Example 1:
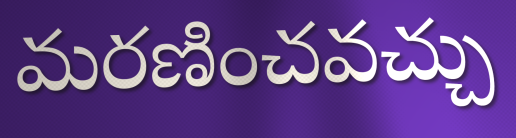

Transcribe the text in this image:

మరణించవచ్చు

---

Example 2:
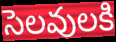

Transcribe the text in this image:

సెలవులకి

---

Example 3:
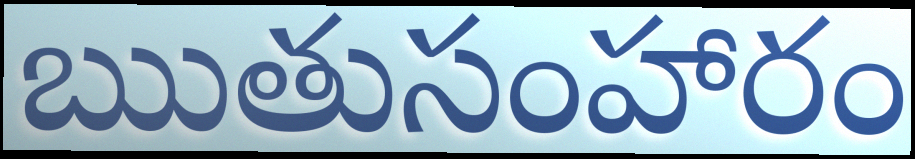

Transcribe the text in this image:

ఋతుసంహారం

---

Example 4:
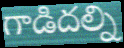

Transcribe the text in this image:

గాడిదల్ని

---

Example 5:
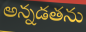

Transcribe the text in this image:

అన్నడతను